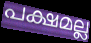
പക്ഷമല്ല